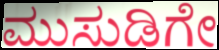
ಮುಸುಡಿಗೇ